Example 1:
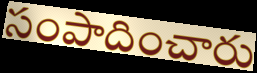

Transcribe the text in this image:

సంపాదించారు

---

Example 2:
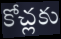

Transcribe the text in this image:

కోచ్లకు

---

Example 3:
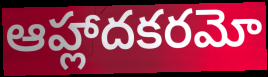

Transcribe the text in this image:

ఆహ్లాదకరమో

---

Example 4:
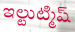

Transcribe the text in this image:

ఇల్టుట్మిష్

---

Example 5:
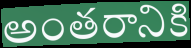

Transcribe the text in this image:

అంతరానికి